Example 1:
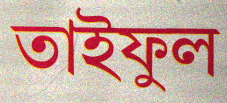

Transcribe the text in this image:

তাইফুল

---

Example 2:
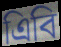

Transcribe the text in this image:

এিবি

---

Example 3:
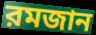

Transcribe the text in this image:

রমজান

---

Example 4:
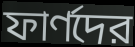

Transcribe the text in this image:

ফার্ণদের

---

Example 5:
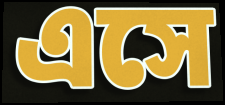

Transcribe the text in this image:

এসে